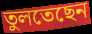
তুলতেছেন